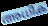
അധിക